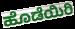
ಹೊಡೆಯಿರಿ